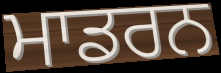
ਮਾਡਰਨ